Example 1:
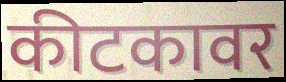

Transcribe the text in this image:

कीटकावर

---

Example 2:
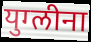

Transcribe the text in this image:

युग्लीना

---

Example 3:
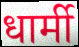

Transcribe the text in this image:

धार्मी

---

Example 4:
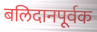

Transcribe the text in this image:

बलिदानपूर्वक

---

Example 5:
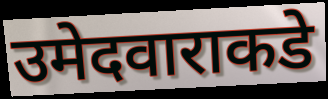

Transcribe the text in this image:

उमेदवाराकडे